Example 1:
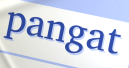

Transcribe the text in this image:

pangat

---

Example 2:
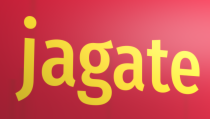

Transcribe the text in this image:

jagate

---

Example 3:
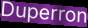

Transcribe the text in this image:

Duperron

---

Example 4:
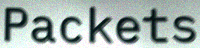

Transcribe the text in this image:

Packets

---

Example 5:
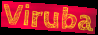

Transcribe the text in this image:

Viruba